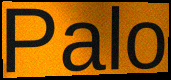
Palo